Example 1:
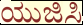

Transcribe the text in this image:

ಯುಜಿಸಿ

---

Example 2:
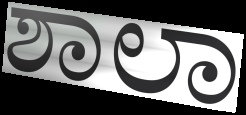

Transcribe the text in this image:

ಶಾಲಾ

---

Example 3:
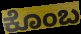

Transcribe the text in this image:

ಕೊಂಬ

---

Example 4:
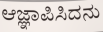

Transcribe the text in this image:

ಆಜ್ಞಾಪಿಸಿದನು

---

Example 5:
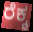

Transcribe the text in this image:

ರೆಕ್ಕ